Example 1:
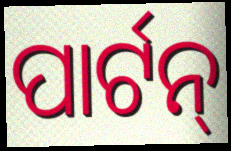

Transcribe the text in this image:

ପାର୍ଟନ୍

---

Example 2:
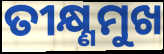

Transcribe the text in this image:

ତୀକ୍ଷ୍ଣମୁଖ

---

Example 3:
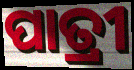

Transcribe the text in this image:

ପାତ୍ରୀ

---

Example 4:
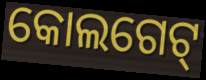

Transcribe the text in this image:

କୋଲଗେଟ୍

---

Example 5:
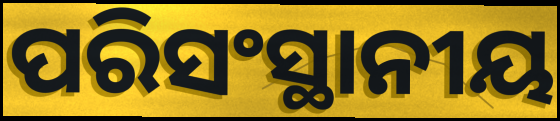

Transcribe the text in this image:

ପରିସଂସ୍ଥାନୀୟ